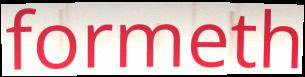
formeth